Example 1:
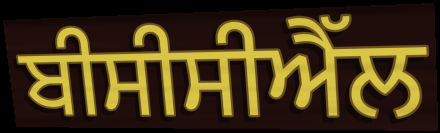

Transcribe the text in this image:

ਬੀਸੀਸੀਐੱਲ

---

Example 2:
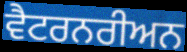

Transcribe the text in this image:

ਵੈਟਰਨਰੀਅਨ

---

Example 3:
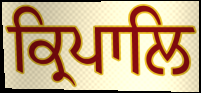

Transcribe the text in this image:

ਕ੍ਰਿਪਾਲਿ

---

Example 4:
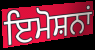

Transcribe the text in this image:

ਇਮੋਸ਼ਨਾਂ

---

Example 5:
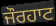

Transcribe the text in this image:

ਜੌਰਹਾਟ